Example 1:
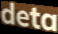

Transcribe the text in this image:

deta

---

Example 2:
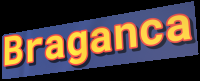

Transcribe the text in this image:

Braganca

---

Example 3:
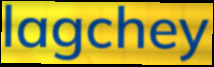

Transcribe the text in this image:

lagchey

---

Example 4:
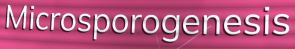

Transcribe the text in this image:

Microsporogenesis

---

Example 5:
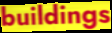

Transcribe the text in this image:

buildings